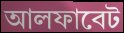
আলফাবেট